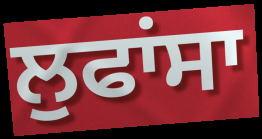
ਲੁਫਾਂਸਾ